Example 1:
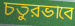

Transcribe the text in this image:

চতুরভাবে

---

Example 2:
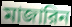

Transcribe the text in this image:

মাজারিন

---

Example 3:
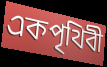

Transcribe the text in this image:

একপৃথিবী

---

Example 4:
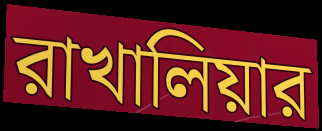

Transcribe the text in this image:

রাখালিয়ার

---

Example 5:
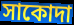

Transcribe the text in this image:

সাকোদা